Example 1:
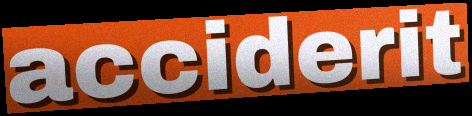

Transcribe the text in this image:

acciderit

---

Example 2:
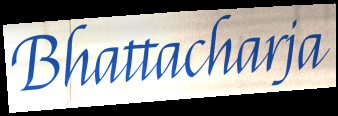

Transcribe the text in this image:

Bhattacharja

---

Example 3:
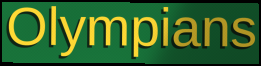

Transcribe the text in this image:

Olympians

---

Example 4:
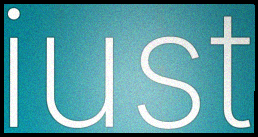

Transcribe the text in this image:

iust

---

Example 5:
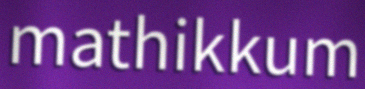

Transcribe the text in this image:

mathikkum